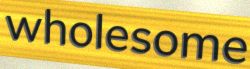
wholesome